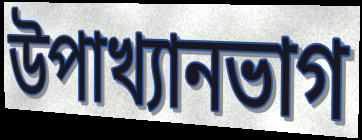
উপাখ্যানভাগ